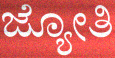
ಜ್ಯೋತಿ